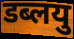
डब्लयु